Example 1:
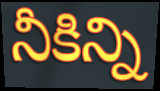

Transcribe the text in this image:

నీకిన్ని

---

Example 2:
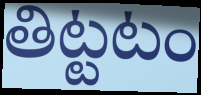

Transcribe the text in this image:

తిట్టటం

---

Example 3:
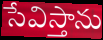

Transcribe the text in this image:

సేవిస్తాను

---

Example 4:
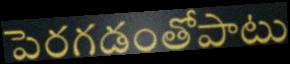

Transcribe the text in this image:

పెరగడంతోపాటు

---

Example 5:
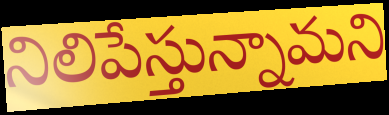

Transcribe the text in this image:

నిలిపేస్తున్నామని